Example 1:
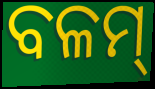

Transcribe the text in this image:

ବଳମ୍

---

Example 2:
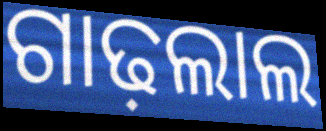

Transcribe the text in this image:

ଗାଢ଼ଲାଲ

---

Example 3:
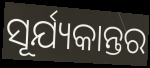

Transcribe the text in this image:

ସୂର୍ଯ୍ୟକାନ୍ତର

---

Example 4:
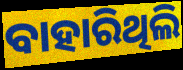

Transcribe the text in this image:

ବାହାରିଥିଲି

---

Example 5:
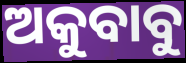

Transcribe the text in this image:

ଅକୁବାବୁ